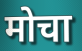
मोचा